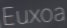
Euxoa